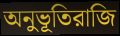
অনুভূতিরাজি